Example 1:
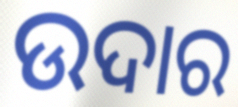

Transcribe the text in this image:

ଉଦାର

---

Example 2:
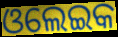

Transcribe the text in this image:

ଓଲେଇକ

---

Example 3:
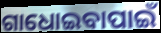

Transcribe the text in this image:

ଗାଧୋଇବାପାଇଁ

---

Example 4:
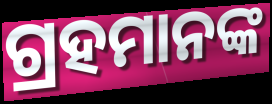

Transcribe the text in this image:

ଗ୍ରହମାନଙ୍କ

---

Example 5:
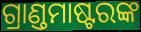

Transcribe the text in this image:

ଗ୍ରାଣ୍ଡମାଷ୍ଟରଙ୍କ